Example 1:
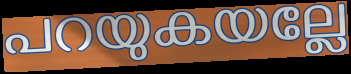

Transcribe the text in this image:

പറയുകയല്ലേ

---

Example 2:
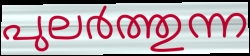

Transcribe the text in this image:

പുലർത്തുന്ന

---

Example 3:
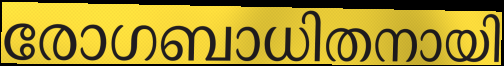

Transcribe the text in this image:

രോഗബാധിതനായി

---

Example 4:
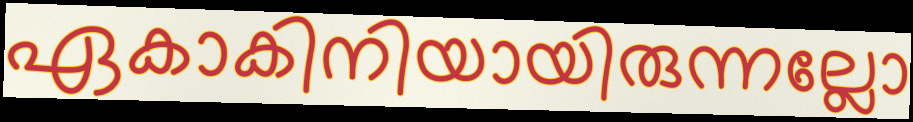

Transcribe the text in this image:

ഏകാകിനിയായിരുന്നല്ലോ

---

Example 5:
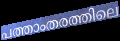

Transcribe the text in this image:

പത്താംതരത്തിലെ